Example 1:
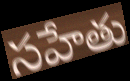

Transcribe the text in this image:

సహేతు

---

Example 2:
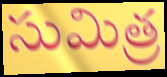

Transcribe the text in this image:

సుమిత్ర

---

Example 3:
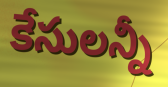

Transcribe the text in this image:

కేసులన్నీ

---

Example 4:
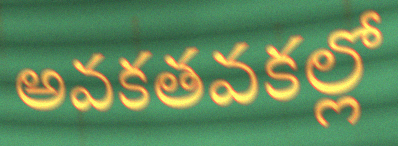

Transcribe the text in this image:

అవకతవకల్లో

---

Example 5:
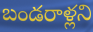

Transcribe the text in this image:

బండరాళ్లని